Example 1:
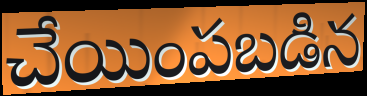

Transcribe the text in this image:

చేయింపబడిన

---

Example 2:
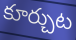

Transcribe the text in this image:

కూర్చుట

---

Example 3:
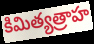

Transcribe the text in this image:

కిమిత్యత్రాహ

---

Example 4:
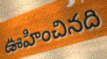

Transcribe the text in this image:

ఊహించినది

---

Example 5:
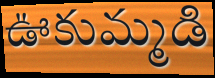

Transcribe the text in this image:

ఊకుమ్మడి